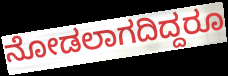
ನೋಡಲಾಗದಿದ್ದರೂ